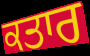
ਕਤਾਰ